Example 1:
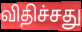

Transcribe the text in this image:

விதிச்சது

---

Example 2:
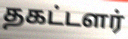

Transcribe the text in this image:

தகட்டளர்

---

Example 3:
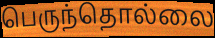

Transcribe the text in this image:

பெருந்தொல்லை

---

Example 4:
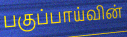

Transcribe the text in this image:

பகுப்பாய்வின்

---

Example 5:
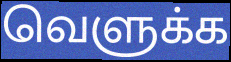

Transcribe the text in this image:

வெளுக்க